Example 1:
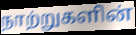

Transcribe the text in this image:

நாற்றுகளின்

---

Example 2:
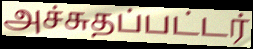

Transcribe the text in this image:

அச்சுதப்பட்டர்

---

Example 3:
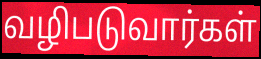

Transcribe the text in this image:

வழிபடுவார்கள்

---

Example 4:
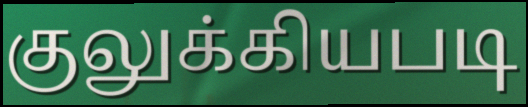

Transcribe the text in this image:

குலுக்கியபடி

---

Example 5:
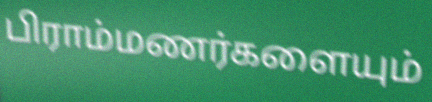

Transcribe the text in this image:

பிராம்மணர்களையும்